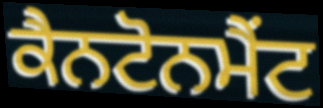
ਕੈਨਟੋਨਮੈਂਟ